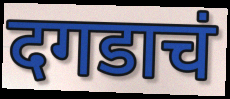
दगडाचं